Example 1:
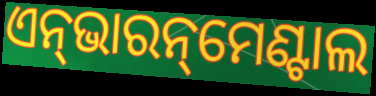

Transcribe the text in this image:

ଏନ୍‌ଭାରନ୍‌ମେଣ୍ଟାଲ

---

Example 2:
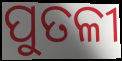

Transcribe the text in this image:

ପୁତଳୀ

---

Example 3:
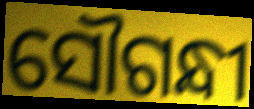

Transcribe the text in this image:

ସୌଗନ୍ଧୀ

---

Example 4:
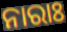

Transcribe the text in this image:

ନାରାଃ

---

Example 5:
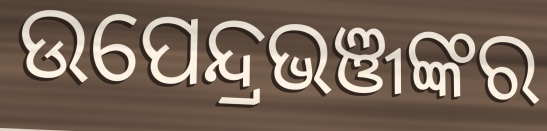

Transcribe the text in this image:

ଉପେନ୍ଦ୍ରଭଞ୍ଜଙ୍କର